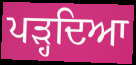
ਪੜ੍ਹਦਿਆ